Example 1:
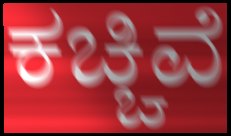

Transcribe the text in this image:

ಕಚ್ಚಿವೆ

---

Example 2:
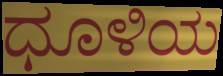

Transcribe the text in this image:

ಧೂಳಿಯ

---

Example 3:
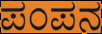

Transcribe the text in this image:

ಪಂಪನ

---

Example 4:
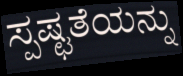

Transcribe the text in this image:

ಸ್ಪಷ್ಟತೆಯನ್ನು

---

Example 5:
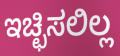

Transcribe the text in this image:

ಇಚ್ಛಿಸಲಿಲ್ಲ